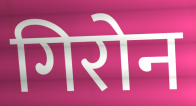
गिरोन